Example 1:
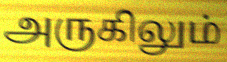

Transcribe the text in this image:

அருகிலும்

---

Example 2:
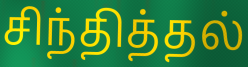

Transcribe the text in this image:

சிந்தித்தல்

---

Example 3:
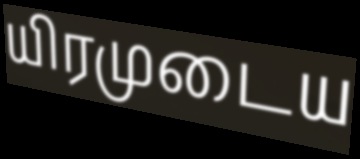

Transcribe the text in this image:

யிரமுடைய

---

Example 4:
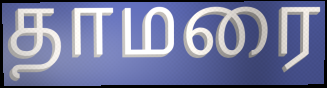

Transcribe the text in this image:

தாமரை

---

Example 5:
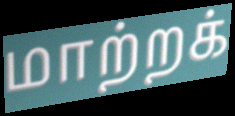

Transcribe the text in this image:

மாற்றக்